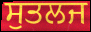
ਸੁਤਲਜ